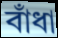
বাঁধা